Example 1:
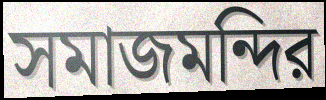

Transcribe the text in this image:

সমাজমন্দির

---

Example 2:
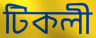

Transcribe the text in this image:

টিকলী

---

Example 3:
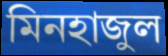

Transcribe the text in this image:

মিনহাজুল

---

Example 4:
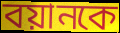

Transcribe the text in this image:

বয়ানকে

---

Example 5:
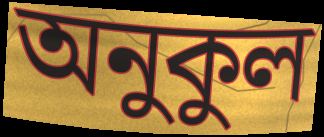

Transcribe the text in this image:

অনুকুল